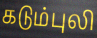
கடும்புலி